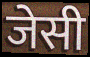
जेसी